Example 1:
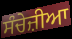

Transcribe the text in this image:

ਸੰਚੇਜ਼ੀਆ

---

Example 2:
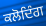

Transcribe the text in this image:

ਕਲੋਦਿੰਗ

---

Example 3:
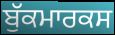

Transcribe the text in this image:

ਬੁੱਕਮਾਰਕਸ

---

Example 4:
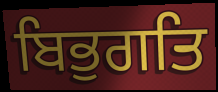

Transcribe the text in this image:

ਬਿਭੁਗਤਿ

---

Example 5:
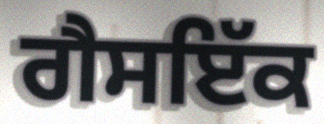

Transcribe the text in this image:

ਗੈਸਇੱਕ